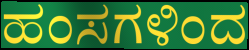
ಹಂಸಗಳಿಂದ